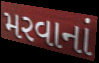
મરવાનાં